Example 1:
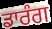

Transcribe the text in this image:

ਡਾਰੰਗ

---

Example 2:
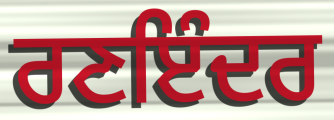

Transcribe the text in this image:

ਰਣਇੰਦਰ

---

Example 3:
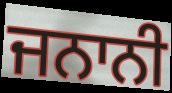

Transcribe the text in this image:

ਜਨਾਨੀ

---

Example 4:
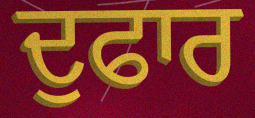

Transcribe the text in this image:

ਦੁਫਾਰ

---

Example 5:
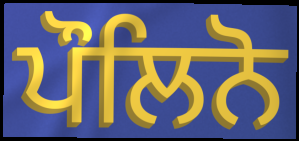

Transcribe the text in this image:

ਪੌਲਿਨੋ